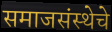
समाजसंस्थेचे